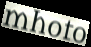
mhoto